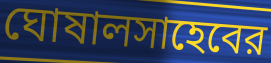
ঘোষালসাহেবের